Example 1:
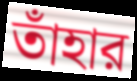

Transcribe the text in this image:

তাঁহার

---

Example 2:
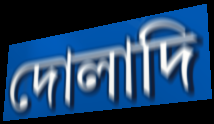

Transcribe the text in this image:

দোলাদি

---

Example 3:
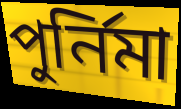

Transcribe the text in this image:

পুর্নিমা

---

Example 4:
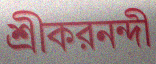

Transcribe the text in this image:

শ্রীকরনন্দী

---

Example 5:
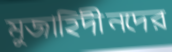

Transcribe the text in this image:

মুজাহিদীনদের